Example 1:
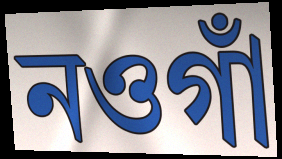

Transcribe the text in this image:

নওগাঁ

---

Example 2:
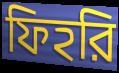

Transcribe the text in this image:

ফিহরি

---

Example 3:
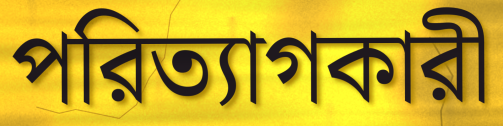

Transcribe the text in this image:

পরিত্যাগকারী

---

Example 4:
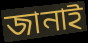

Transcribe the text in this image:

জানাই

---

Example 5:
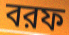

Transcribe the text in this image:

বরফ